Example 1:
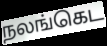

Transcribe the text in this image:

நலங்கெட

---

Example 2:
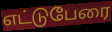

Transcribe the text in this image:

எட்டுபேரை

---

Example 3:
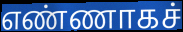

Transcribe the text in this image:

எண்ணாகச்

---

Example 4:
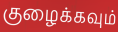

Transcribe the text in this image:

குழைக்கவும்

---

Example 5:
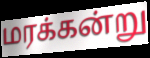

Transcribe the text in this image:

மரக்கன்று